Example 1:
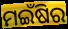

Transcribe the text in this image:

ମଇଁଷିର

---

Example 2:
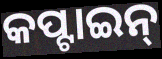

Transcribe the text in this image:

କପ୍ଟାଇନ୍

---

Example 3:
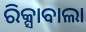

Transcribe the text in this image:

ରିକ୍ସାବାଲା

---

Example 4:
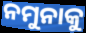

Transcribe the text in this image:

ନମୁନାକୁ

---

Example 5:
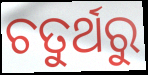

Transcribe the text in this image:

ଚତୁର୍ଥରୁ